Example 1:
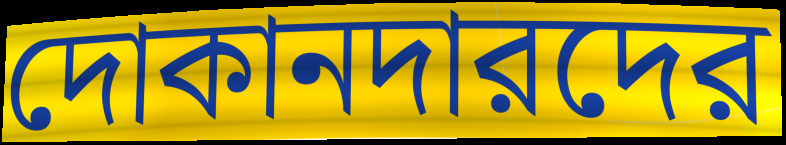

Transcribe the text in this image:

দোকানদারদের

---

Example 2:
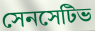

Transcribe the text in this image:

সেনসেটিভ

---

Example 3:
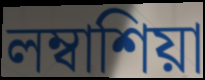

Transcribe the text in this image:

লম্বাশিয়া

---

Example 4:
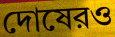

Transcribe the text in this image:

দোষেরও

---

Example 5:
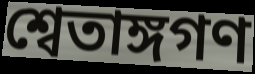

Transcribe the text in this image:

শ্বেতাঙ্গগণ